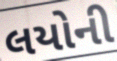
લયોની